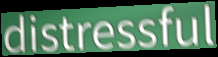
distressful